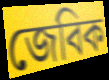
জেবিক